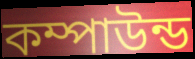
কম্পাউন্ড